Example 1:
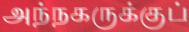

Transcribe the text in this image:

அந்நகருக்குப்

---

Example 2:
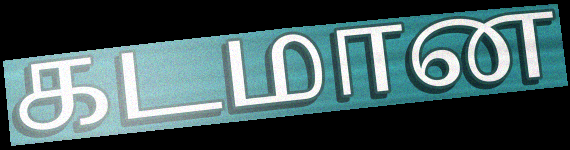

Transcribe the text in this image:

கடமான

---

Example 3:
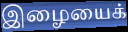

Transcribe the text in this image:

இழையைக்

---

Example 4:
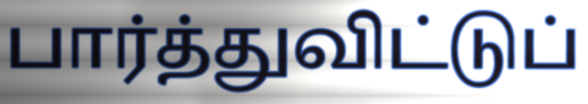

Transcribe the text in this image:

பார்த்துவிட்டுப்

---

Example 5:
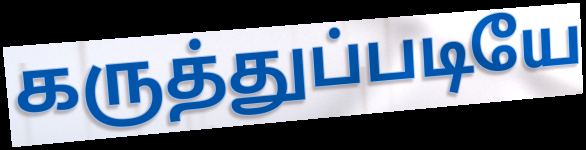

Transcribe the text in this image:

கருத்துப்படியே